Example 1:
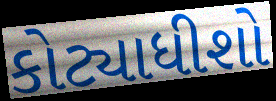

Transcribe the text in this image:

કોટ્યાધીશો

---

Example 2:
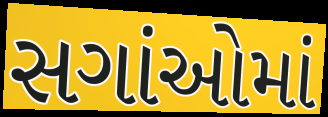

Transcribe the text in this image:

સગાંઓમાં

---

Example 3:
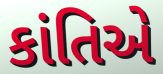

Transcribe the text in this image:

કાંતિએ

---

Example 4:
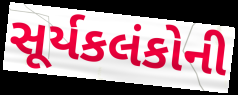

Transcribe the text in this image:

સૂર્યકલંકોની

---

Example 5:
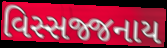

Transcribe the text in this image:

વિસ્સજ્જનાય